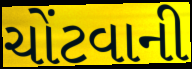
ચોંટવાની